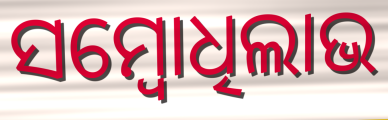
ସମ୍ବୋଧିଲାଭ